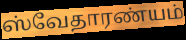
ஸ்வேதாரண்யம்